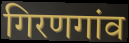
गिरणगांव